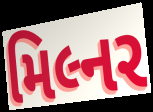
મિલ્નર